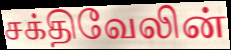
சக்திவேலின்